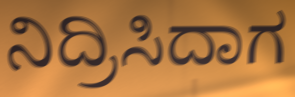
ನಿದ್ರಿಸಿದಾಗ